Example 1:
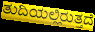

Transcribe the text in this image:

ತುದಿಯಲ್ಲಿರುತ್ತದೆ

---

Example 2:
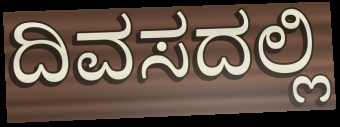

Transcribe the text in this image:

ದಿವಸದಲ್ಲಿ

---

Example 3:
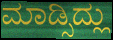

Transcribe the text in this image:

ಮಾಡ್ಸಿದ್ಲು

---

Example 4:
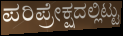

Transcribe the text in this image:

ಪರಿಪ್ರೇಕ್ಷದಲ್ಲಿಟ್ಟು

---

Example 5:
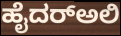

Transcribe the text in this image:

ಹೈದರ್‌ಅಲಿ